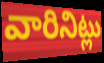
వారినిట్లు